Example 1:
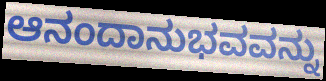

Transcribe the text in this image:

ಆನಂದಾನುಭವವನ್ನು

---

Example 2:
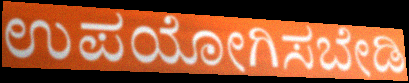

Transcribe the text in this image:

ಉಪಯೋಗಿಸಬೇಡಿ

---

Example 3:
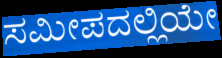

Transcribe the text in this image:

ಸಮೀಪದಲ್ಲಿಯೇ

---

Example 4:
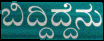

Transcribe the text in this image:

ಬಿದ್ದಿದ್ದೆನು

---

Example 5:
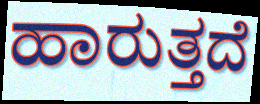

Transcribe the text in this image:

ಹಾರುತ್ತದೆ